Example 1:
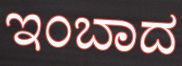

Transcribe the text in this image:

ಇಂಬಾದ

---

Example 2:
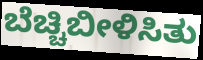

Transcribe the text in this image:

ಬೆಚ್ಚಿಬೀಳಿಸಿತು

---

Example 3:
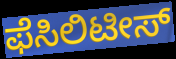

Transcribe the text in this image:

ಫೆಸಿಲಿಟೀಸ್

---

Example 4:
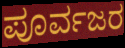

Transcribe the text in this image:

ಪೂರ್ವಜರ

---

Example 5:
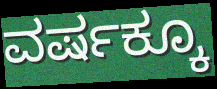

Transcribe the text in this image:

ವರ್ಷಕ್ಕೂ